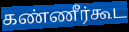
கண்ணீர்கூட